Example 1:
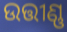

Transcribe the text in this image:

ଉତ୍ତୀଣ୍ଣ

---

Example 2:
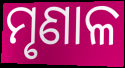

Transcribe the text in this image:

ମୃଣାଳ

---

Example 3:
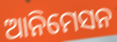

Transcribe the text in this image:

ଆନିମେସନ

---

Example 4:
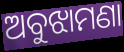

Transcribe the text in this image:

ଅବୁଝାମଣା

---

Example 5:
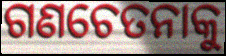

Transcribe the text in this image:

ଗଣଚେତନାକୁ